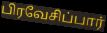
பிரவேசிப்பார்